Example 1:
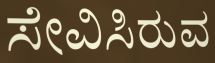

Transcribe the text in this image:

ಸೇವಿಸಿರುವ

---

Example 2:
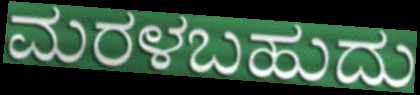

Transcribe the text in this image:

ಮರಳಬಹುದು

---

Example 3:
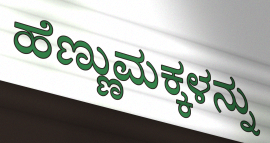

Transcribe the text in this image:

ಹೆಣ್ಣುಮಕ್ಕಳನ್ನು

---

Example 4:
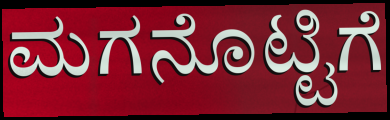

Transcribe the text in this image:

ಮಗನೊಟ್ಟಿಗೆ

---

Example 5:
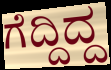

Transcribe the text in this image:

ಗೆದ್ದಿದ್ದ